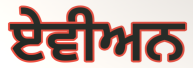
ਏਵੀਅਨ